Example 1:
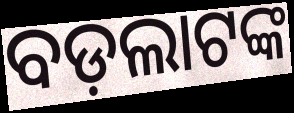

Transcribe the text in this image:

ବଡ଼ଲାଟଙ୍କ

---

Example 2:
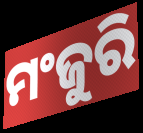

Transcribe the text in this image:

ମଂଜୁରି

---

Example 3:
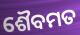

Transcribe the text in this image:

ଶୈବମତ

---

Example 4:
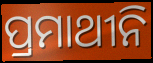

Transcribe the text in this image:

ପ୍ରମାଥୀନି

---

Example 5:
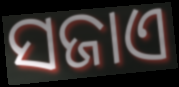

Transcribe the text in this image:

ସଜାଏ